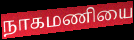
நாகமணியை